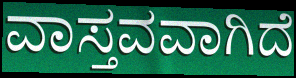
ವಾಸ್ತವವಾಗಿದೆ